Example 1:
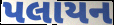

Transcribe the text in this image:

પલાયન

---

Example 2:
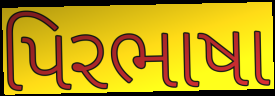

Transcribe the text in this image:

પિરભાષા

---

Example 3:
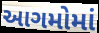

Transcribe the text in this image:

આગમોમાં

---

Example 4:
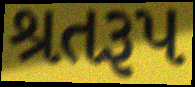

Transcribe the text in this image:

શ્રતરૂપ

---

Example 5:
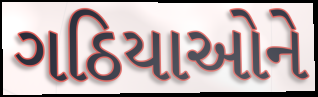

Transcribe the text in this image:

ગઠિયાઓને